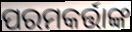
ପରମକର୍ତ୍ତାଙ୍କ